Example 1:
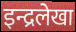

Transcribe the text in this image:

इन्द्रलेखा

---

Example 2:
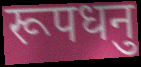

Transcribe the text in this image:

रूपधनु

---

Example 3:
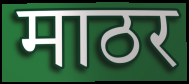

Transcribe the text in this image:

माठर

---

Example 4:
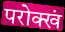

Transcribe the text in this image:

परोक्खं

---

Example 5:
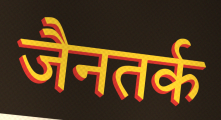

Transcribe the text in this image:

जैनतर्क